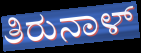
ತಿರುನಾಳ್